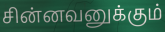
சின்னவனுக்கும்